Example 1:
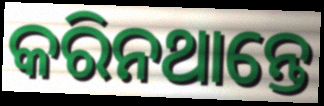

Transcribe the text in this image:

କରିନଥାନ୍ତେ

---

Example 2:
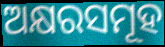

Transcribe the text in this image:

ଅକ୍ଷରସମୂହ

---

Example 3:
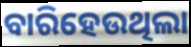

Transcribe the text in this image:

ବାରିହେଉଥିଲା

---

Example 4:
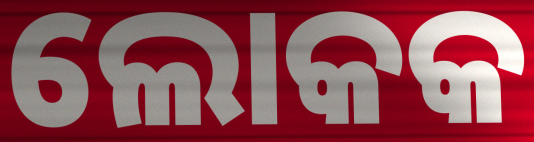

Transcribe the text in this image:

ଲୋକକ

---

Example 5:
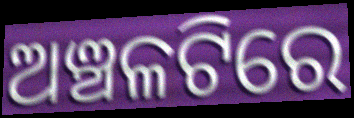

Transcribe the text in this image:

ଅଞ୍ଚଳଟିରେ